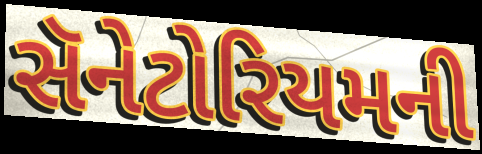
સૅનેટોરિયમની